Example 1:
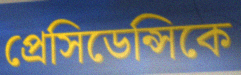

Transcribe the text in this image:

প্রেসিডেন্সিকে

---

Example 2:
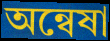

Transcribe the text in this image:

অন্বেষা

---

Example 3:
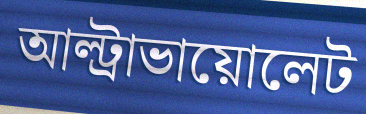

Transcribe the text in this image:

আল্ট্রাভায়োলেট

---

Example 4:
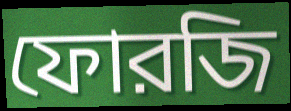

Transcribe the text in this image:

ফোরজি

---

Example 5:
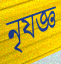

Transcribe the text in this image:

নৃযজ্ঞ